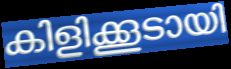
കിളിക്കൂടായി